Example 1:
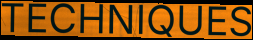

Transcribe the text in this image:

TECHNIQUES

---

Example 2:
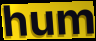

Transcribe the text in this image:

hum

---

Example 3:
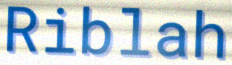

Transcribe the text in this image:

Riblah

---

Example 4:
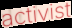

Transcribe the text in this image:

activist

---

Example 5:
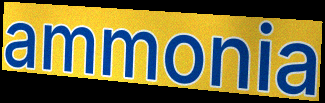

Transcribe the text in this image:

ammonia